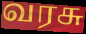
வரசு